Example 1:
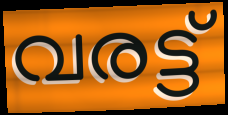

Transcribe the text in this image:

വരട്ട്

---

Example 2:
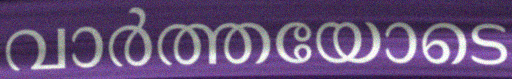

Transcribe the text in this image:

വാർത്തയോടെ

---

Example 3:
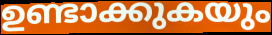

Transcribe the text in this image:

ഉണ്ടാക്കുകയും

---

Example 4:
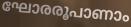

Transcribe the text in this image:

ഘോരരൂപാണാം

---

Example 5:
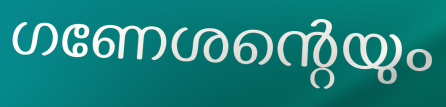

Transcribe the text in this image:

ഗണേശന്റെയും